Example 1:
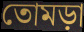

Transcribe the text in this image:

তোমড়া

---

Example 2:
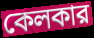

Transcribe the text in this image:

কেলকার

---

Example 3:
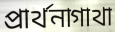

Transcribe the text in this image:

প্রার্থনাগাথা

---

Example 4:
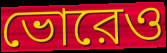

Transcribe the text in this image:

ভোরেও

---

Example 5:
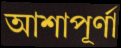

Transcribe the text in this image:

আশাপূর্ণা